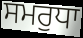
ਸਮਰੁਧਾ